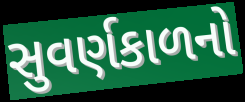
સુવર્ણકાળનો